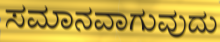
ಸಮಾನವಾಗುವುದು